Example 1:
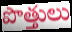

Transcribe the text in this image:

పొత్తులు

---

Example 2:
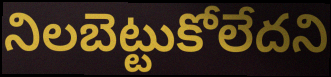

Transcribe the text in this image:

నిలబెట్టుకోలేదని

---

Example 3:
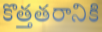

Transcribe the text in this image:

కొత్తతరానికి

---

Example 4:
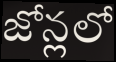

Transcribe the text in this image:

జోన్లలో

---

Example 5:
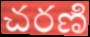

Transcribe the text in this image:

చరణి